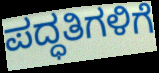
ಪದ್ಧತಿಗಳಿಗೆ